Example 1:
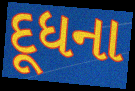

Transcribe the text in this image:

દૂધના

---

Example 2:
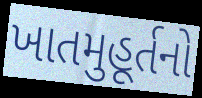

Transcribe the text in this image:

ખાતમુહૂર્તનો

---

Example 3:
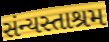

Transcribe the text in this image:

સંન્યસ્તાશ્રમ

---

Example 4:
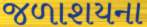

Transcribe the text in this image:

જળાશયના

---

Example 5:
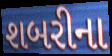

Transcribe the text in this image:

શબરીના